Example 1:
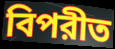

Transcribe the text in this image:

বিপরীত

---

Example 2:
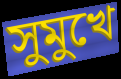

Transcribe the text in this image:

সুমুখে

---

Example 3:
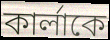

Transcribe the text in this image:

কার্লাকে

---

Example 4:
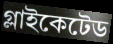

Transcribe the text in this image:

গ্লাইকেটেড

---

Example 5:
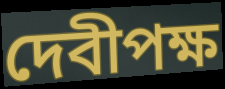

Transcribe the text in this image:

দেবীপক্ষ